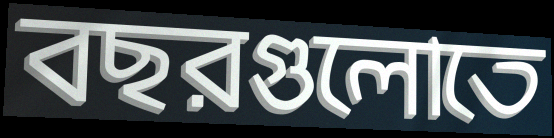
বছরগুলোতে